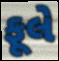
ફૂલે